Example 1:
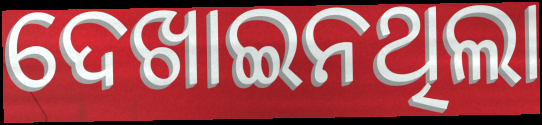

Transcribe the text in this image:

ଦେଖାଇନଥିଲା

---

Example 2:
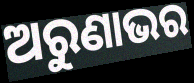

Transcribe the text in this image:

ଅରୁଣାଭର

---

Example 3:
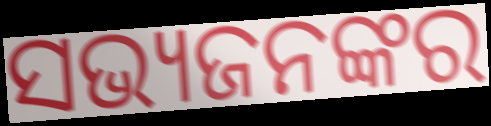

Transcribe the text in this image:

ସଭ୍ୟଜନଙ୍କର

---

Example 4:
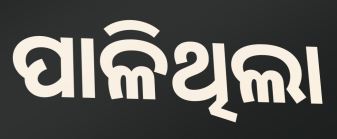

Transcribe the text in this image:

ପାଳିଥିଲା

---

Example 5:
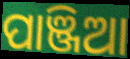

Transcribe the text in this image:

ପାଞ୍ଜିଆ